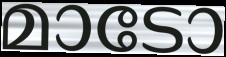
മാടോ